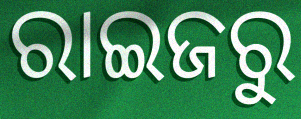
ରାଇଜରୁ